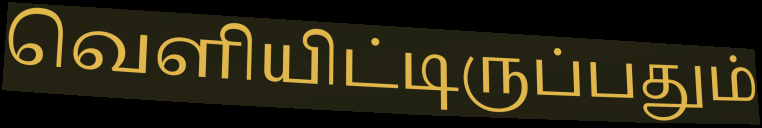
வெளியிட்டிருப்பதும்